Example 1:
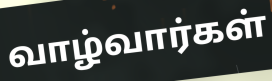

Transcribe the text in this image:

வாழ்வார்கள்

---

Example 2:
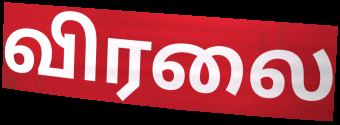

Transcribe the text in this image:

விரலை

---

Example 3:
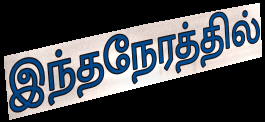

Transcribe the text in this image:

இந்தநேரத்தில்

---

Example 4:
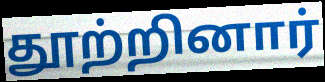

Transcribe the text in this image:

தூற்றினார்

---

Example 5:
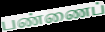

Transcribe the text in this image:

பண்ணைப்